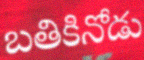
బతికినోడు